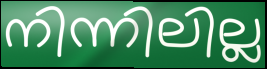
നിന്നിലില്ല